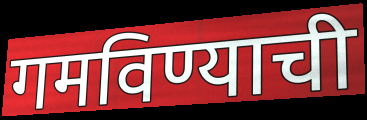
गमविण्याची